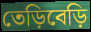
তেড়িবেড়ি